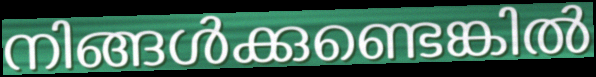
നിങ്ങൾക്കുണ്ടെങ്കിൽ